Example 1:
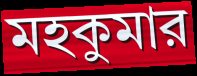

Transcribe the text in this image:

মহকুমার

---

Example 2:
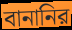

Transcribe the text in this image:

বানানির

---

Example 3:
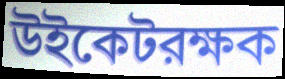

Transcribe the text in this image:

উইকেটরক্ষক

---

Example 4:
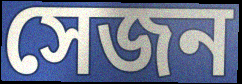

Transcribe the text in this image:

সেজন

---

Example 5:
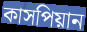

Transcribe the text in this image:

কাসপিয়ান